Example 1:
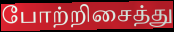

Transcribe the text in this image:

போற்றிசைத்து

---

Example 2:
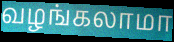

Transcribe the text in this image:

வழங்கலாமா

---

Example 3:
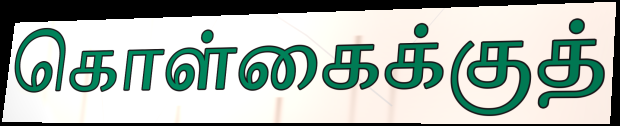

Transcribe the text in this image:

கொள்கைக்குத்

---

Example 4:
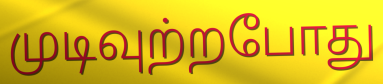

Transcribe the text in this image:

முடிவுற்றபோது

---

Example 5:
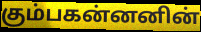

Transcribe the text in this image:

கும்பகன்னனின்